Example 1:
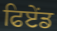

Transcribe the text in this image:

ਫਿਏਂਡ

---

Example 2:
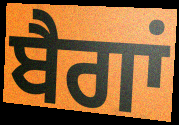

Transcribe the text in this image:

ਬੈਗਾਂ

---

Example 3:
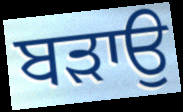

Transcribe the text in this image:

ਬਡ਼ਾਉ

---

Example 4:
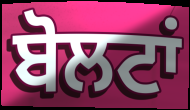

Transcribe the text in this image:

ਬੋਲਟਾਂ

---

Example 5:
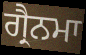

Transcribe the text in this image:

ਗ੍ਰੈਨਮਾ